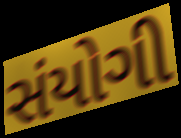
સંયોગી